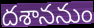
దశాననుం